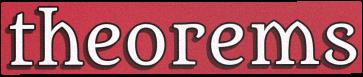
theorems